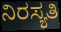
ನಿರಸ್ಯತಿ